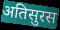
अतिसुरस